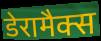
डेरामैक्स